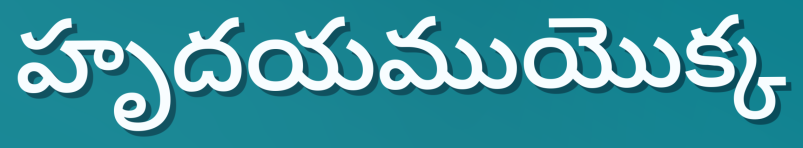
హృదయముయొక్క